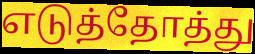
எடுத்தோத்து